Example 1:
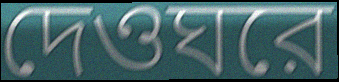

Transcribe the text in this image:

দেওঘরে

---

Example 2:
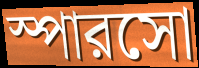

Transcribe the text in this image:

স্পারসো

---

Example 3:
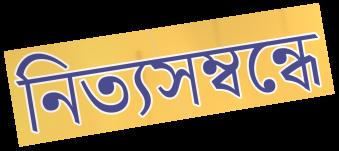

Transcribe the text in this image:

নিত্যসম্বন্ধে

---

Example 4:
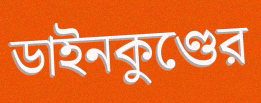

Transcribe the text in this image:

ডাইনকুণ্ডের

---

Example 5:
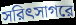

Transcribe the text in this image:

সরিৎসাগরে